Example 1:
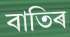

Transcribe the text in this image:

বাতিৰ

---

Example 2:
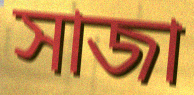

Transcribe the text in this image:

সাজা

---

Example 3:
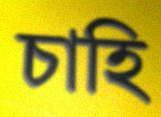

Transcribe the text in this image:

চাহি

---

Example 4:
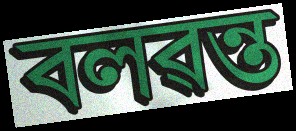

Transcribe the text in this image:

বলৱন্ত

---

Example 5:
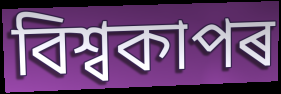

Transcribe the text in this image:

বিশ্বকাপৰ